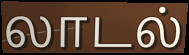
லாடல்